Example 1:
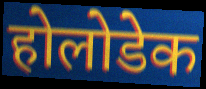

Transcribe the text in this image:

होलोडेक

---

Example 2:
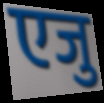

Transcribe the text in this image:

एजु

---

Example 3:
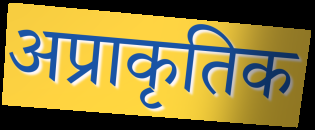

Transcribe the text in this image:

अप्राकृतिक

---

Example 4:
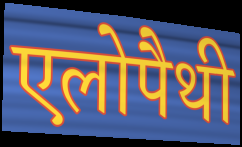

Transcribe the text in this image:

एलोपैथी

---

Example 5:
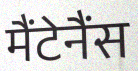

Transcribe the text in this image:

मैंटेनैंस